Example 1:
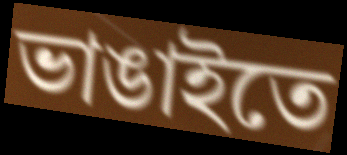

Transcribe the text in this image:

ভাঙাইতে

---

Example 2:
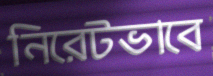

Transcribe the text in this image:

নিরেটভাবে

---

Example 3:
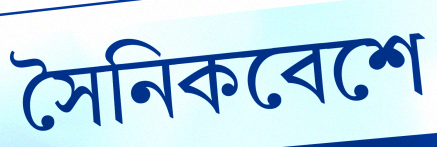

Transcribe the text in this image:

সৈনিকবেশে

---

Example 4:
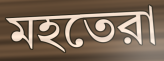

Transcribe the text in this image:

মহতেরা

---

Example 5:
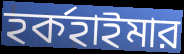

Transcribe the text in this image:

হর্কহাইমার